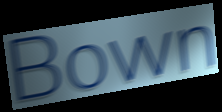
Bown